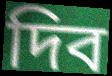
দিব